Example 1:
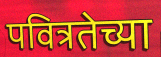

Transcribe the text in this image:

पवित्रतेच्या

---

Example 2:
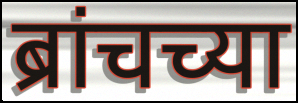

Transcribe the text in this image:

ब्रांचच्या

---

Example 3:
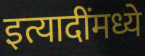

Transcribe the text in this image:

इत्यादींमध्ये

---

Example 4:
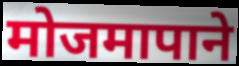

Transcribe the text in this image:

मोजमापाने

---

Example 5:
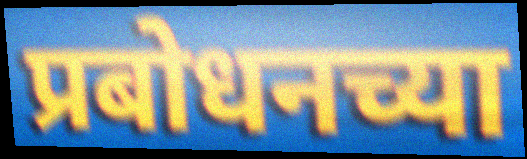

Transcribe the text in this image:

प्रबोधनच्या